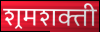
श्रमशक्ती